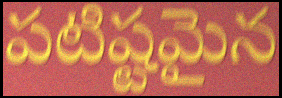
పటిష్టమైన